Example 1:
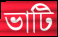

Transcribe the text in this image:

ভাটি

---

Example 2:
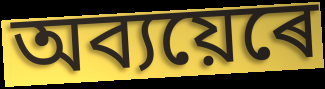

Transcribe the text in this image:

অব্যয়েৰে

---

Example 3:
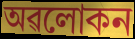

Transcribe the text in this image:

অৱলোকন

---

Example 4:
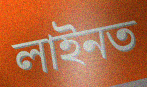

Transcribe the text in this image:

লাইনত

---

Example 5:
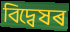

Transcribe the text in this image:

বিদ্বেষৰ